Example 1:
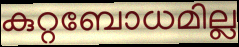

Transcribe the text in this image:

കുറ്റബോധമില്ല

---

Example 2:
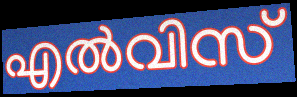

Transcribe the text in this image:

എൽവിസ്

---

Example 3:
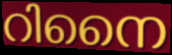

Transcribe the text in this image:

റിനൈ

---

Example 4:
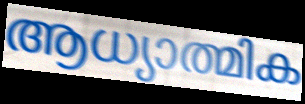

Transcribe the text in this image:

ആധ്യാത്മിക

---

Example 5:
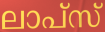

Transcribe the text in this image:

ലാപ്സ്